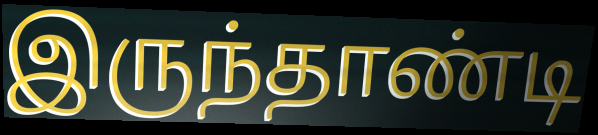
இருந்தாண்டி